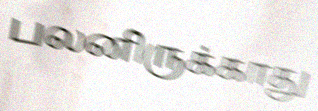
பலனிருக்காது